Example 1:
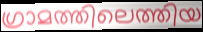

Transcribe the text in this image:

ഗ്രാമത്തിലെത്തിയ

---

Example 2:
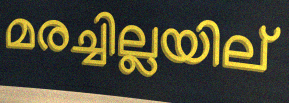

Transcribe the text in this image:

മരച്ചില്ലയില്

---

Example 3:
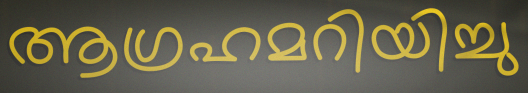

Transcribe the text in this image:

ആഗ്രഹമറിയിച്ചു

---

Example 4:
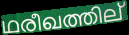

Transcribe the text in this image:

ഥരീഖത്തില്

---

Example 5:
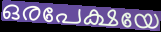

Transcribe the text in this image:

ഒരപേക്ഷയേ